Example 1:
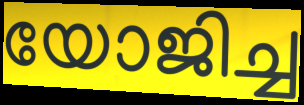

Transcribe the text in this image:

യോജിച്ച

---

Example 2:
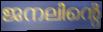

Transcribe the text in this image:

ജനലിന്റെ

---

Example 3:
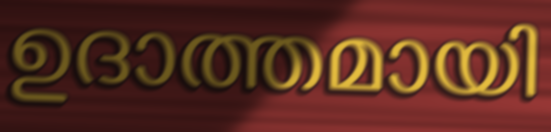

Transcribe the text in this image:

ഉദാത്തമായി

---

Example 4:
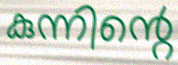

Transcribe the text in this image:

കുന്നിന്റെ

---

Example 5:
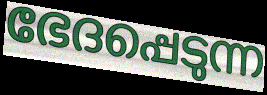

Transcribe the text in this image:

ഭേദപ്പെടുന്ന